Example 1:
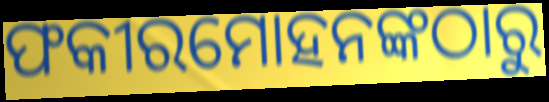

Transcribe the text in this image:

ଫକୀରମୋହନଙ୍କଠାରୁ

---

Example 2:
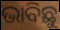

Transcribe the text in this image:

ଭାବିଛୁ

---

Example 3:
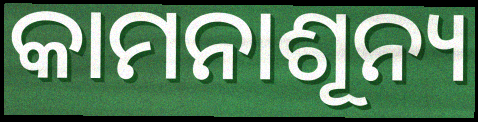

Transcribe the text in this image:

କାମନାଶୂନ୍ୟ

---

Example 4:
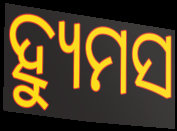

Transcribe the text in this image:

ହ୍ୟୁମସ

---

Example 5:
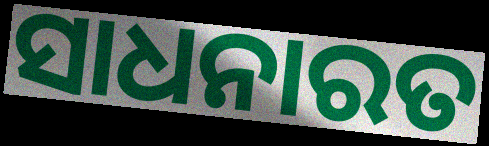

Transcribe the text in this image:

ସାଧନାରତ